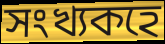
সংখ্যকহে